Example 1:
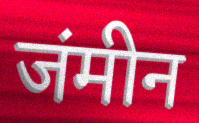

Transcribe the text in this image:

जंमीन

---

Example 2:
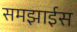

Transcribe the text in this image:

समझाईस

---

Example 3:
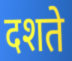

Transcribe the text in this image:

दशते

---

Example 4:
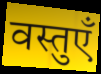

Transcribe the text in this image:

वस्तुएँ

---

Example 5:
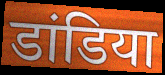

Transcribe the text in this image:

डांडिया